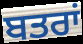
ਬਤਰਾਂ